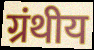
ग्रंथीय